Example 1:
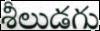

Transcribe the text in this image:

శీలుడగు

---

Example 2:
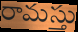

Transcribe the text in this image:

రామస్తు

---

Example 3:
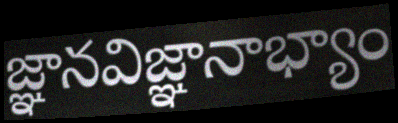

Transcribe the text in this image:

జ్ఞానవిజ్ఞానాభ్యాం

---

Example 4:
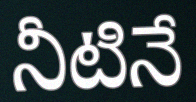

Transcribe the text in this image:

నీటినే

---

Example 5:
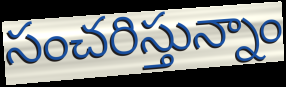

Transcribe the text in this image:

సంచరిస్తున్నాం